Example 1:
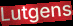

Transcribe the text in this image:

Lutgens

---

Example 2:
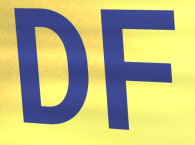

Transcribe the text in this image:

DF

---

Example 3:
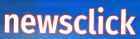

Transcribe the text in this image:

newsclick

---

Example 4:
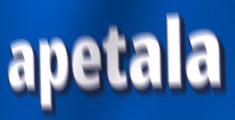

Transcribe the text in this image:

apetala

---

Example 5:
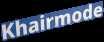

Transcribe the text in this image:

Khairmode